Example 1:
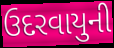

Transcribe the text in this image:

ઉદરવાયુની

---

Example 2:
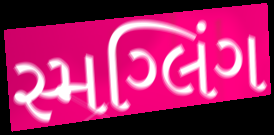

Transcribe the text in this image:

સ્મગ્લિંગ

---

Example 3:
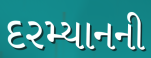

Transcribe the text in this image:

દરમ્યાનની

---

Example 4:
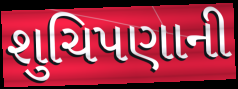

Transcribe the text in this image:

શુચિપણાની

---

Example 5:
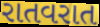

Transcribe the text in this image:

રાતવરાત